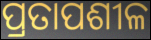
ପ୍ରତାପଶୀଳ